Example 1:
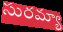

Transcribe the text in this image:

సురమ్యా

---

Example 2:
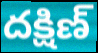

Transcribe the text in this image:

దక్షిణ్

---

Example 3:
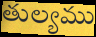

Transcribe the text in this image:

తుల్యము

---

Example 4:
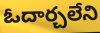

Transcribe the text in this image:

ఓదార్చలేని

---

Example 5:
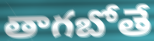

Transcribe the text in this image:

తాగబోతే